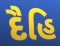
દૈહિ